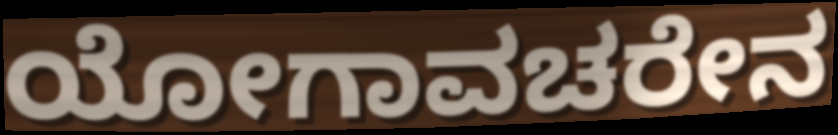
ಯೋಗಾವಚರೇನ